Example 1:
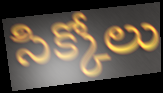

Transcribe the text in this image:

సిక్కోలు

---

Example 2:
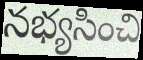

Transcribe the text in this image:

నభ్యసించి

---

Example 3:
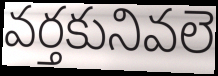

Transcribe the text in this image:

వర్తకునివలె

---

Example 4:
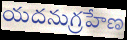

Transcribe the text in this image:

యదనుగ్రహేణ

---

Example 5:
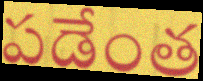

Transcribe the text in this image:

పడేంత